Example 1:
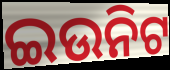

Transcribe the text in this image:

ଇଉନିଟ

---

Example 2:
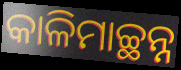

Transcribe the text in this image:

କାଳିମାଚ୍ଛନ୍ନ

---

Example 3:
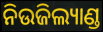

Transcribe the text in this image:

ନିଉଜିଲ୍ୟାଣ୍ଡ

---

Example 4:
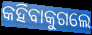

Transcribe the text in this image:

କହିବାକୁଗଲେ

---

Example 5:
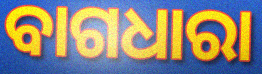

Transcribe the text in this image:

ବାଗଧାରା